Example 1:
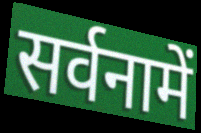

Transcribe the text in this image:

सर्वनामें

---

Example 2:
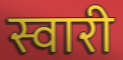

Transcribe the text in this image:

स्वारी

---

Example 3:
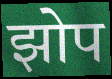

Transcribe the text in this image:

झोप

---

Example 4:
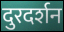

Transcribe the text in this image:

दुरदर्शन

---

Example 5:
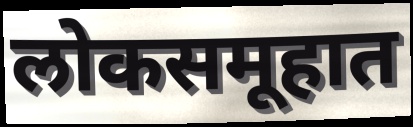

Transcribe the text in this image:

लोकसमूहात